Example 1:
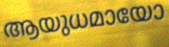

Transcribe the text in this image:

ആയുധമായോ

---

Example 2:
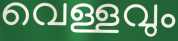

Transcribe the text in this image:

വെള്ളവും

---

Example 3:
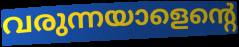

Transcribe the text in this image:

വരുന്നയാളെന്റെ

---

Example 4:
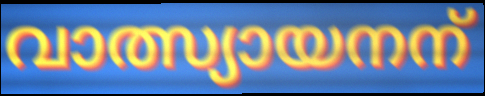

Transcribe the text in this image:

വാത്സ്യായനന്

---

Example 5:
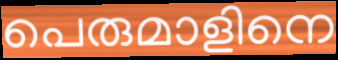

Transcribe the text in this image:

പെരുമാളിനെ